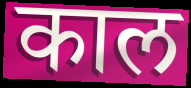
काल